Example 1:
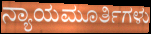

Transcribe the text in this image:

ನ್ಯಾಯಮೂರ್ತಿಗಳು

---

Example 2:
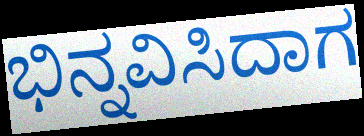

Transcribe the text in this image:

ಭಿನ್ನವಿಸಿದಾಗ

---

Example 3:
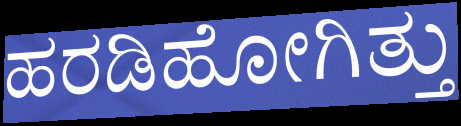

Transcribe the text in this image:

ಹರಡಿಹೋಗಿತ್ತು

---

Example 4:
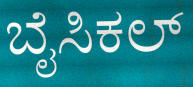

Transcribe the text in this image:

ಬೈಸಿಕಲ್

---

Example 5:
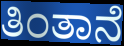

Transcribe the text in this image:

ತಿಂತಾನೆ